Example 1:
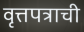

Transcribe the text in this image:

वृत्तपत्राची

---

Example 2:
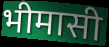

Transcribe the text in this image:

भीमासी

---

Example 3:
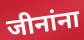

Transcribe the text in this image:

जीनांना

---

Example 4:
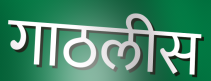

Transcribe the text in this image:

गाठलीस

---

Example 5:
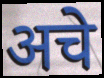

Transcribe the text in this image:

अचे